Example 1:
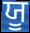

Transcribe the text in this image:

ਯੂ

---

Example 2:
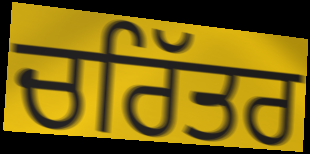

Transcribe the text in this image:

ਚਰਿੱਤਰ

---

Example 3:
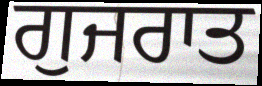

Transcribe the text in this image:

ਗੁਜਰਾਤ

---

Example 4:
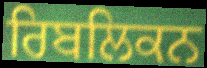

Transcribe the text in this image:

ਰਿਬਲਿਕਨ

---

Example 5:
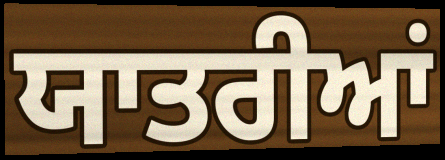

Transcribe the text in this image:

ਯਾਤਰੀਆਂ